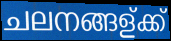
ചലനങ്ങള്ക്ക്